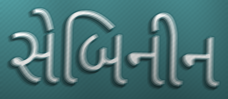
સેબિનીન